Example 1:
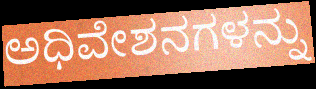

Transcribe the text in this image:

ಅಧಿವೇಶನಗಳನ್ನು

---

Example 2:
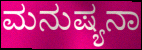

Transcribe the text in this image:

ಮನುಷ್ಯನಾ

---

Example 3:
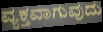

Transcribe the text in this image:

ವ್ಯಕ್ತವಾಗುವುದು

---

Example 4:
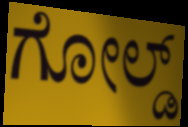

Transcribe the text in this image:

ಗೋಲ್ಡ್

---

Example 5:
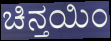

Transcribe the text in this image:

ಚಿನ್ತಯಿಂ